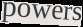
powers